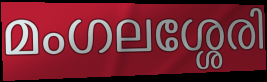
മംഗലശ്ശേരി